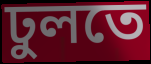
ঢুলতে